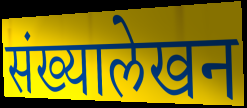
संख्यालेखन